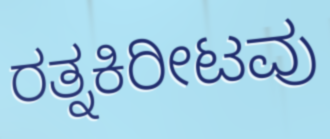
ರತ್ನಕಿರೀಟವು